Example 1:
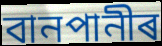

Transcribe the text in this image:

বানপানীৰ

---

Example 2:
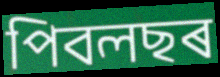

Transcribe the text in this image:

পিবলছৰ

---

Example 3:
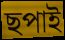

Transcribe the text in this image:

ছপাই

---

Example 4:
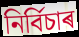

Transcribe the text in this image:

নিৰ্বিচাৰ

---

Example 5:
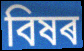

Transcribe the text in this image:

বিষৰ